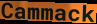
Cammack